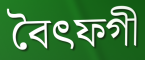
বৈৎফগী